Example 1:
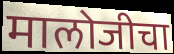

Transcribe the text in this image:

मालोजीचा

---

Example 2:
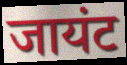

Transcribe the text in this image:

जायंट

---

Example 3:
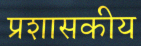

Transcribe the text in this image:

प्रशासकीय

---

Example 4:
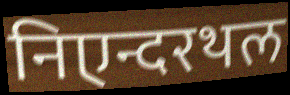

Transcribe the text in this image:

निएन्दरथल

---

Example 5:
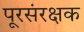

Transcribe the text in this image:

पूरसंरक्षक